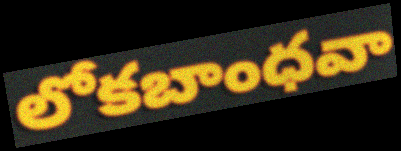
లోకబాంధవా